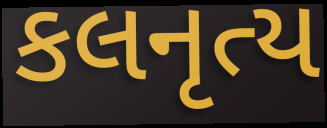
કલનૃત્ય